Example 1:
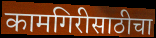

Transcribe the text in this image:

कामगिरीसाठीचा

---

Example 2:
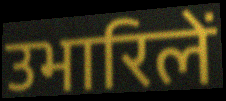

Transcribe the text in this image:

उभारिलें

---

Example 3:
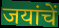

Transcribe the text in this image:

जयांचें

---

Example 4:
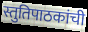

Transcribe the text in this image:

स्तुतिपाठकांची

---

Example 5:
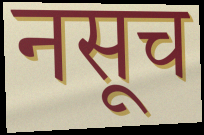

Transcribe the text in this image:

नसूच